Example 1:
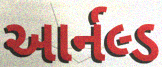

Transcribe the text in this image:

આર્નલ્ડ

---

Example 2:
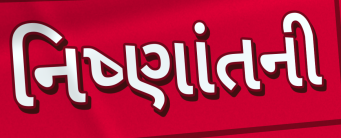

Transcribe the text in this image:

નિષ્ણાંતની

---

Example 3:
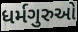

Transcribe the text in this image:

ધર્મગુરુઓ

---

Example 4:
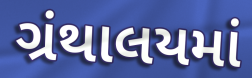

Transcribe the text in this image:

ગ્રંથાલયમાં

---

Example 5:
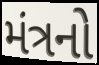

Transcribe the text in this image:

મંત્રનો